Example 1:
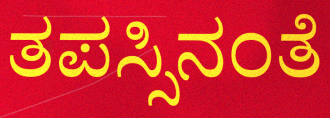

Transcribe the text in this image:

ತಪಸ್ಸಿನಂತೆ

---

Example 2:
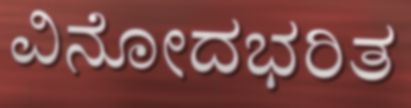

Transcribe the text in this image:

ವಿನೋದಭರಿತ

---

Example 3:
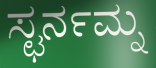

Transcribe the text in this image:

ಸ್ಟರ್ನಮ್ನ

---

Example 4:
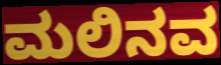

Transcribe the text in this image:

ಮಲಿನವ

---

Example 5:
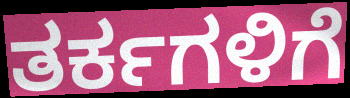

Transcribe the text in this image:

ತರ್ಕಗಳಿಗೆ